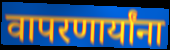
वापरणार्यांना